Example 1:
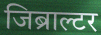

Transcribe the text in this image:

जिब्राल्टर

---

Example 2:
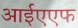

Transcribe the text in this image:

आईएएफ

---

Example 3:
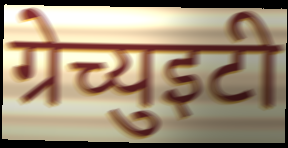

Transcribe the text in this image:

ग्रेच्युइटी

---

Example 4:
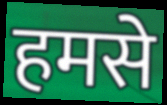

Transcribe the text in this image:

हमसे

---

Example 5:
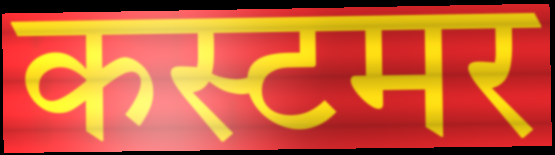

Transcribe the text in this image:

कस्टमर